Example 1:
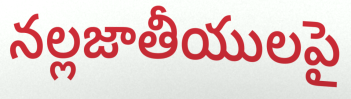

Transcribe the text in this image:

నల్లజాతీయులపై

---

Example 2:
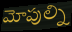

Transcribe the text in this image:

మోపుల్ని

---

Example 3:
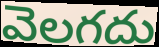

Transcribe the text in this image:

వెలగదు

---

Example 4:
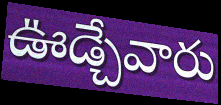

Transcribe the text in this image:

ఊడ్చేవారు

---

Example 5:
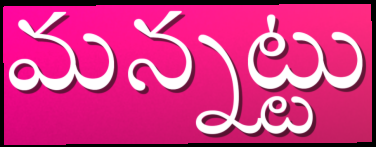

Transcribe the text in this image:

మన్నట్టు